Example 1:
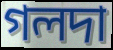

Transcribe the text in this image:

গলদা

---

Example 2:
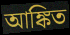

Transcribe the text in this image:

আঙ্কিত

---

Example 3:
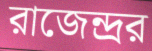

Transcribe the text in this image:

রাজেন্দ্রর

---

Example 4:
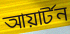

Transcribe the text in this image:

আয়ার্টন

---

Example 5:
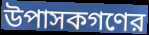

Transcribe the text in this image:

উপাসকগণের